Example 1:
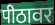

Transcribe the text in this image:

पीठावर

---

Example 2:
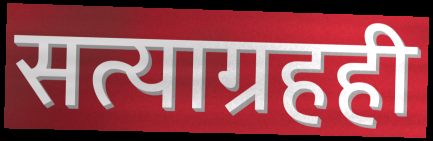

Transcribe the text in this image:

सत्याग्रहही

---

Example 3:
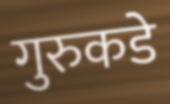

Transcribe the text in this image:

गुरुकडे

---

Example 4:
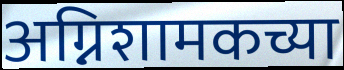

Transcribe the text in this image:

अग्निशामकच्या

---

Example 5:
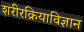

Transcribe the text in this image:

शरीरक्रियाविज्ञान